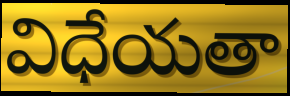
విధేయతా